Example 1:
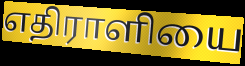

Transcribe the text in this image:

எதிராளியை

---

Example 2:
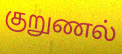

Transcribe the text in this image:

குறுணல்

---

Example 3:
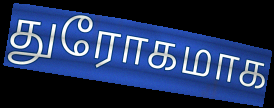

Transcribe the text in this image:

துரோகமாக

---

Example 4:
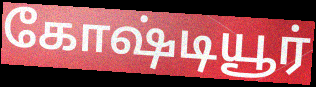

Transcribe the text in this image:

கோஷ்டியூர்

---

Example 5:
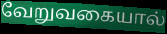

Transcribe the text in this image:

வேறுவகையால்